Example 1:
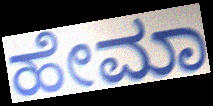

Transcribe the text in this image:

ಹೇಮಾ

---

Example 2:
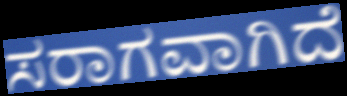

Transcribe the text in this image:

ಸರಾಗವಾಗಿದೆ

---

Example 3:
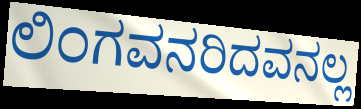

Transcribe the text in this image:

ಲಿಂಗವನರಿದವನಲ್ಲ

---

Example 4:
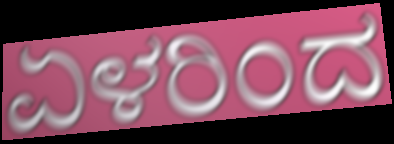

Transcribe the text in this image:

ಏಳರಿಂದ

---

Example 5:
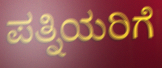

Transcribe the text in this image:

ಪತ್ನಿಯರಿಗೆ